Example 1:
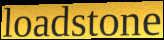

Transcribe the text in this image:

loadstone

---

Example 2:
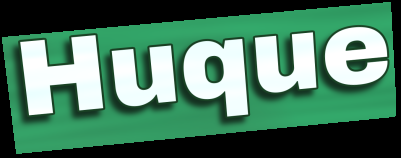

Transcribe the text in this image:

Huque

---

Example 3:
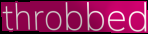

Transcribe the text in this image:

throbbed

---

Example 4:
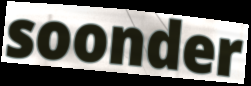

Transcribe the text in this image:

soonder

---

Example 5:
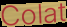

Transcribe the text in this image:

Colat